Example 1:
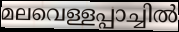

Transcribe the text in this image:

മലവെള്ളപ്പാച്ചിൽ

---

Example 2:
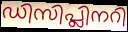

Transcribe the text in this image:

ഡിസിപ്ലിനറി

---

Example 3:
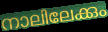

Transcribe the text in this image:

നാലിലേക്കും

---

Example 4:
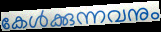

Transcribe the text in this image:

കേൾക്കുന്നവനും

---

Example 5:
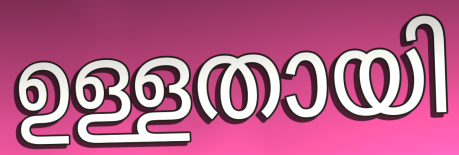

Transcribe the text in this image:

ഉള്ളതായി